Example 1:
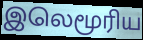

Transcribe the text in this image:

இலெமூரிய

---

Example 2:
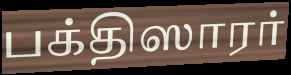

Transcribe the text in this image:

பக்திஸாரர்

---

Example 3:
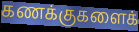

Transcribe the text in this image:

கணக்குகளைக்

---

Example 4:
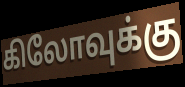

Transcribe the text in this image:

கிலோவுக்கு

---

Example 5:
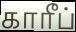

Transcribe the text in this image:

காரீப்